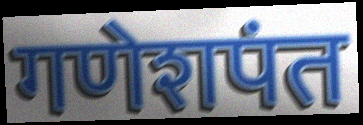
गणेशपंत